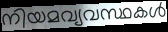
നിയമവ്യവസ്ഥകൾ